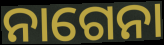
ନାଗେନା